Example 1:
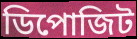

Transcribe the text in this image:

ডিপোজিট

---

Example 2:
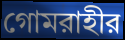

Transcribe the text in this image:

গোমরাহীর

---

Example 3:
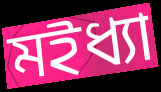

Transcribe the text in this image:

মইধ্যা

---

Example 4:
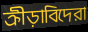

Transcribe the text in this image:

ক্রীড়াবিদেরা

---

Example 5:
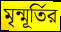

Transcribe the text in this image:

মৃন্মূর্তির